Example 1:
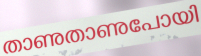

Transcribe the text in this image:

താണുതാണുപോയി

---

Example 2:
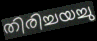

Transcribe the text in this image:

തിരിച്ചയച്ചു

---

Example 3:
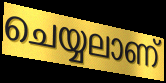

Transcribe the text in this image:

ചെയ്യലാണ്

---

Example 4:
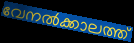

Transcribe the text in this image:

വേനൽക്കാലത്ത്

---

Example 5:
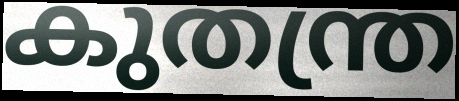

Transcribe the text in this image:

കുതന്ത്ര